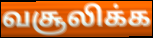
வசூலிக்க